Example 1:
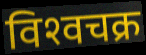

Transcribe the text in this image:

विश्वचक्र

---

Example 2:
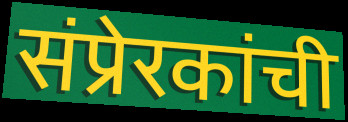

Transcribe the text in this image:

संप्रेरकांची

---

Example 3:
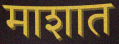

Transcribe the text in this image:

माशात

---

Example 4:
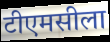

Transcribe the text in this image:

टीएमसीला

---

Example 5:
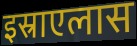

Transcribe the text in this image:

इस्राएलास